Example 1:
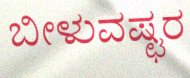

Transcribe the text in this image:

ಬೀಳುವಷ್ಟರ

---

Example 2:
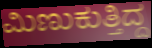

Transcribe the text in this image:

ಮಿಣುಕುತ್ತಿದ್ದ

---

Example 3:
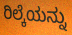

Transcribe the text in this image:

ರಿಲ್ಕೆಯನ್ನು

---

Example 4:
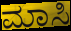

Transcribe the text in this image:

ಮಾಸಿ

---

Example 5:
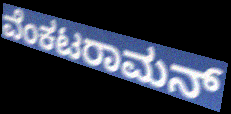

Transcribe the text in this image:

ವೆಂಕಟರಾಮನ್